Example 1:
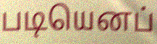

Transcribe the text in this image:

படியெனப்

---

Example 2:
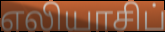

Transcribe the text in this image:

எலியாசிப்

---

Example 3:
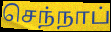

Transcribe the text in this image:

செந்நாப்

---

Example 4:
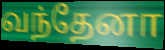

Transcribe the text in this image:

வந்தேனா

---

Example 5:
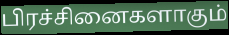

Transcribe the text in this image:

பிரச்சினைகளாகும்